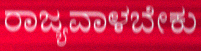
ರಾಜ್ಯವಾಳಬೇಕು